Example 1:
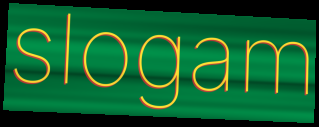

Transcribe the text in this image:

slogam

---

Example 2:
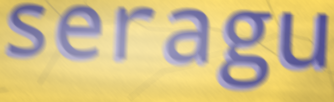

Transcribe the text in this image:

seragu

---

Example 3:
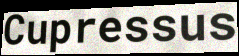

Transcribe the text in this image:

Cupressus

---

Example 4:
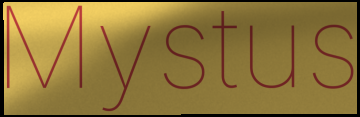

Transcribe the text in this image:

Mystus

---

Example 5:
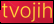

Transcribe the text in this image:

tvojih